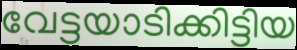
വേട്ടയാടിക്കിട്ടിയ